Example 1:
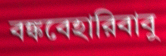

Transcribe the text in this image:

বঙ্কবেহারিবাবু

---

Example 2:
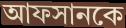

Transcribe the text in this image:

আফসানকে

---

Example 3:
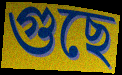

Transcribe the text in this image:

গুছে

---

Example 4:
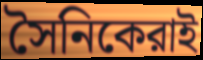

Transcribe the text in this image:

সৈনিকেরাই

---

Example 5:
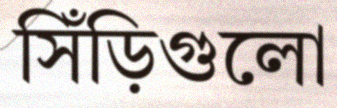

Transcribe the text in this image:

সিঁড়িগুলো